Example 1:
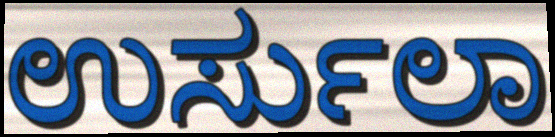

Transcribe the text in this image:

ಉರ್ಸುಲಾ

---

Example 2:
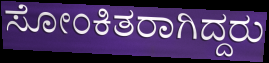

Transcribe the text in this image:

ಸೋಂಕಿತರಾಗಿದ್ದರು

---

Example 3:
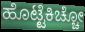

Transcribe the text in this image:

ಹೊಟ್ಟೆಕಿಚ್ಚೋ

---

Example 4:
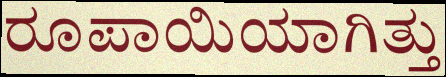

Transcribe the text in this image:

ರೂಪಾಯಿಯಾಗಿತ್ತು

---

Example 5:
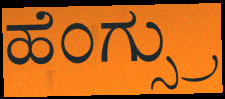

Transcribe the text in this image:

ಹೆಂಗ್ಸ್ರು